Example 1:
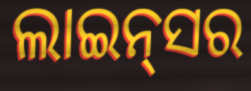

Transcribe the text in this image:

ଲାଇନ୍‌ସର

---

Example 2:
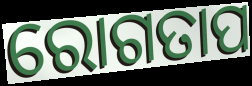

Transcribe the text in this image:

ରୋଗତାପ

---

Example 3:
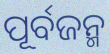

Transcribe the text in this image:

ପୂର୍ବଜନ୍ମ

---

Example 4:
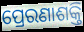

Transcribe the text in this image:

ପ୍ରେରଣାଶକ୍ତି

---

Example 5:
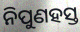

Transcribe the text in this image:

ନିପୁଣହସ୍ତ